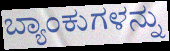
ಬ್ಯಾಂಕುಗಳನ್ನು